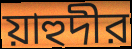
য়াহুদীর